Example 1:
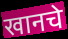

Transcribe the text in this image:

खानचे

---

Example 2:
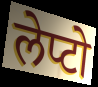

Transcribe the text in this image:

लेप्टो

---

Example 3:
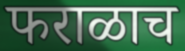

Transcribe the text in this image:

फराळाच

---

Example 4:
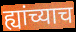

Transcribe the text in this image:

ह्यांच्याच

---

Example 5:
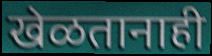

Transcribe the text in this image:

खेळतानाही